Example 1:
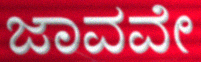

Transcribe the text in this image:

ಜಾವವೇ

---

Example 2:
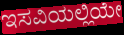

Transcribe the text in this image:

ಇಸವಿಯಲ್ಲಿಯೇ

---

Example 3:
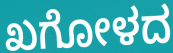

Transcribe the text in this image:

ಖಗೋಳದ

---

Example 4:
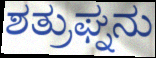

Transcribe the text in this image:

ಶತ್ರುಘ್ನನು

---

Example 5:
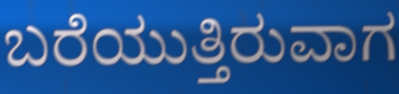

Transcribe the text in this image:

ಬರೆಯುತ್ತಿರುವಾಗ